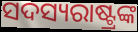
ସଦସ୍ୟରାଷ୍ଟ୍ରଙ୍କ